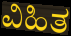
ವಿಹಿತ